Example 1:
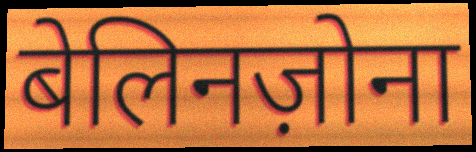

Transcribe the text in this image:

बेलिनज़ोना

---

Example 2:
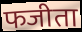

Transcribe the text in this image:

फजीता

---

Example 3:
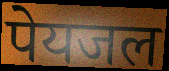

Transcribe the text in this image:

पेयजल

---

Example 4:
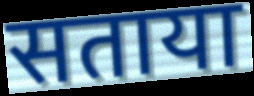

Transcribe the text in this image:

सताया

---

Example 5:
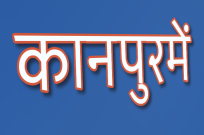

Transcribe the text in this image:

कानपुरमें